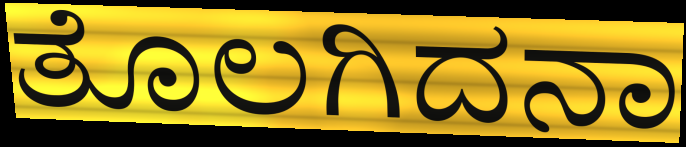
ತೊಲಗಿದನಾ